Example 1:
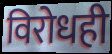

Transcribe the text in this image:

विरोधही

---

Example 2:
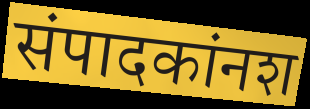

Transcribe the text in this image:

संपादकांनश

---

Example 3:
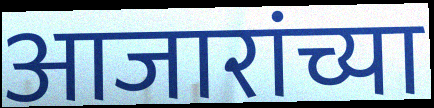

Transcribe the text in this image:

आजारांच्या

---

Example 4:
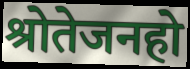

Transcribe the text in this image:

श्रोतेजनहो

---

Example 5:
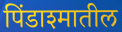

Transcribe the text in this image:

पिंडाश्मातील